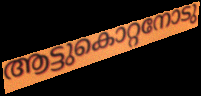
ആട്ടുകൊറ്റനോടു